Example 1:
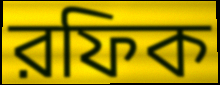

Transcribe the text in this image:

রফিক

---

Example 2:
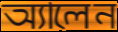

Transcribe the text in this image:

অ্যালেন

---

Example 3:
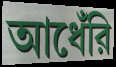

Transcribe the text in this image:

আধেঁরি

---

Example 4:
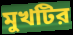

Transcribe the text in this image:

মুখটির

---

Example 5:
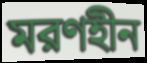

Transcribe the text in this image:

মরণহীন